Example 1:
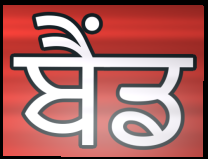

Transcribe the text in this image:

ਬੈਂਡ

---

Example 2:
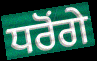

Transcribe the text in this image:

ਧਰੋਂਗੇ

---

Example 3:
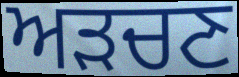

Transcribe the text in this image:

ਅੜਚਣ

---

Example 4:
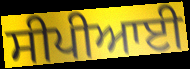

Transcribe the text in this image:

ਸੀਪੀਆਈ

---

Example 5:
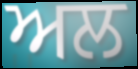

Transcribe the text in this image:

ਅਲ